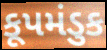
કૂપમંડુક